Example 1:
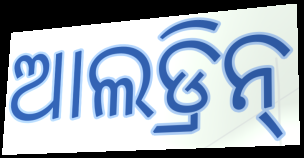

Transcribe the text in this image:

ଆଲଡ୍ରିନ୍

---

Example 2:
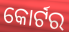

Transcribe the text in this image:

କୋର୍ଟର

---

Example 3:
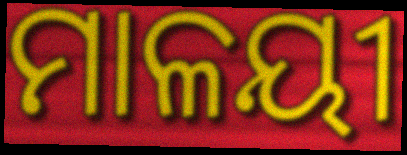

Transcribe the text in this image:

ମାଳୟୀ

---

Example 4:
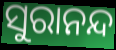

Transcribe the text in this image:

ସୁରାନନ୍ଦ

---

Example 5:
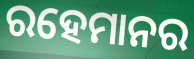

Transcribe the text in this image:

ରହେମାନର